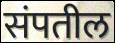
संपतील